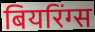
बियरिंग्स